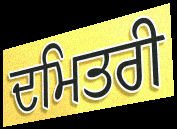
ਦਮਿਤਰੀ